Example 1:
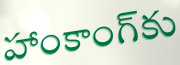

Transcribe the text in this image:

హాంకాంగ్‌కు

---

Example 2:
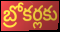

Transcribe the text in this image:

బ్రోకర్లకు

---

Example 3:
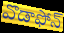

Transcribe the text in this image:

వొడాఫోన్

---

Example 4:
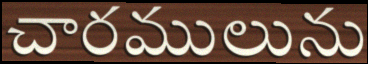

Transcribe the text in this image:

చారములును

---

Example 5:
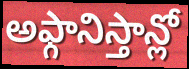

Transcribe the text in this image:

అఫ్గానిస్తాన్లో